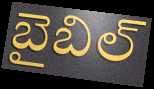
బైబిల్